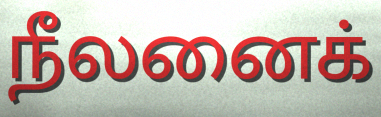
நீலனைக்